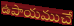
ఉపాయముచే